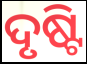
ଦୃଷ୍ଟି